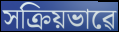
সক্ৰিয়ভাৱে